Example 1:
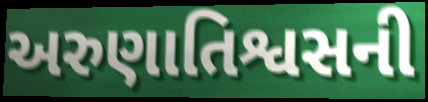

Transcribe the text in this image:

અરુણાતિશ્વસની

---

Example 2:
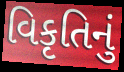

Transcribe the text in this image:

વિકૃતિનું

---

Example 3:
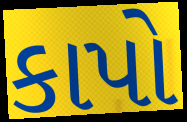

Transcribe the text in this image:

કાપો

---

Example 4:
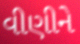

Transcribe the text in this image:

વીણીને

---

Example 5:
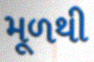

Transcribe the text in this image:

મૂળથી